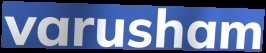
varusham